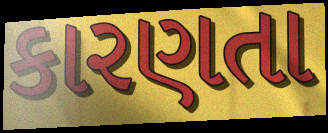
કારણતા